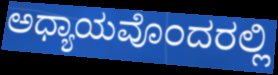
ಅಧ್ಯಾಯವೊಂದರಲ್ಲಿ